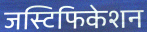
जस्टिफिकेशन